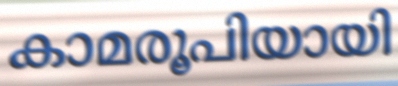
കാമരൂപിയായി